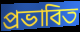
প্ৰভাবিত